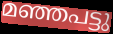
മഞ്ഞപട്ടു